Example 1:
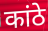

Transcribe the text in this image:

कांठे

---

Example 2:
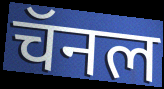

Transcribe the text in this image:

चॅनल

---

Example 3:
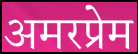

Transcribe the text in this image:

अमरप्रेम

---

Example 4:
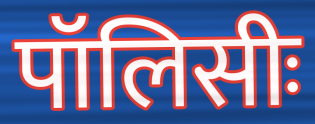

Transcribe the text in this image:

पॉलिसीः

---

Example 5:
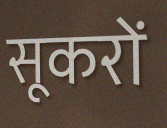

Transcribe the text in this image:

सूकरों